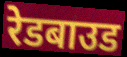
रेडबाउड